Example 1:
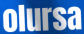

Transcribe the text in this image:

olursa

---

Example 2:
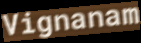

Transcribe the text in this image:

Vignanam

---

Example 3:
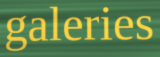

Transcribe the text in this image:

galeries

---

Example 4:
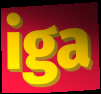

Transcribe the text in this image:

iga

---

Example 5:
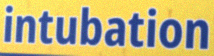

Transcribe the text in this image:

intubation